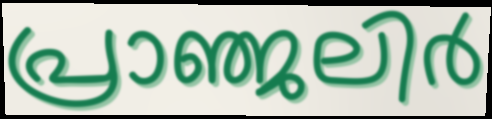
പ്രാഞ്ജലിർ